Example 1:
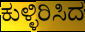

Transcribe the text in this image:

ಕುಳ್ಳಿರಿಸಿದ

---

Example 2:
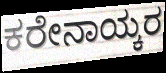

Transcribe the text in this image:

ಕರೇನಾಯ್ಕರ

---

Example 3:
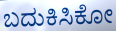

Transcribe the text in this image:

ಬದುಕಿಸಿಕೋ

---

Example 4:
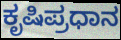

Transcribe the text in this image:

ಕೃಷಿಪ್ರಧಾನ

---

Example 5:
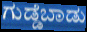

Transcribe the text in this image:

ಗುಡ್ಡೆಬಾಡು